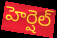
హెర్షెల్